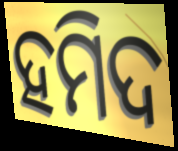
ହମିଦ